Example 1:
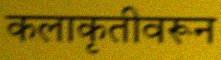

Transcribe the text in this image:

कलाकृतीवरून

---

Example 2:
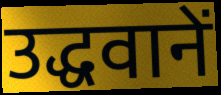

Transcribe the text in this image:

उद्धवानें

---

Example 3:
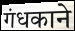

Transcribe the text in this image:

गंधकाने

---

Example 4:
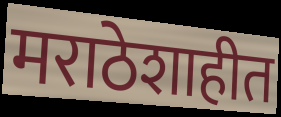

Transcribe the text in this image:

मराठेशाहीत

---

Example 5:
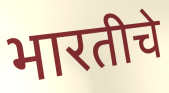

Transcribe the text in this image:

भारतीचे